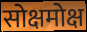
सोक्षमोक्ष